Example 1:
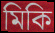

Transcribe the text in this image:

মিকি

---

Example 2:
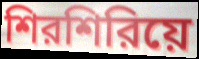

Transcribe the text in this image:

শিরশিরিয়ে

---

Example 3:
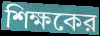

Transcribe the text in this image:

শিক্ষকের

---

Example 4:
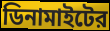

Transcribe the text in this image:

ডিনামাইটের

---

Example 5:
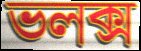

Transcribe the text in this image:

ভলক্স